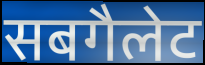
सबगैलेट